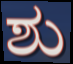
ಶು